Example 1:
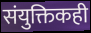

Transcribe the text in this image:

संयुक्तिकही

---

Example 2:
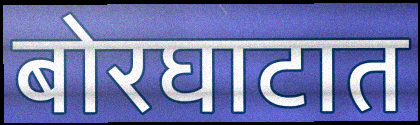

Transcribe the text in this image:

बोरघाटात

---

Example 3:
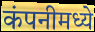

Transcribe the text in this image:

कंपनीमध्ये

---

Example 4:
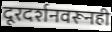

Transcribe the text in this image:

दूरदर्शनवरूनही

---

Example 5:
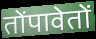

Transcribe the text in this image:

तोंपावेतों